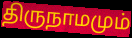
திருநாமமும்